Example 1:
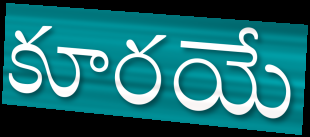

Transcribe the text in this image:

కూరయే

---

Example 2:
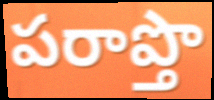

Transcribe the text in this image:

పరాప్తొ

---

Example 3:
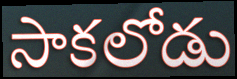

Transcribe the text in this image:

సాకలోడు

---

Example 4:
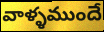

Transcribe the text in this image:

వాళ్ళముందే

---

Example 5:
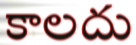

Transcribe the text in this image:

కాలదు